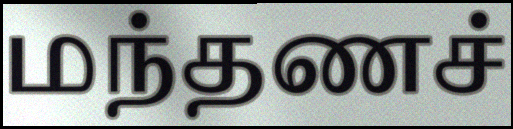
மந்தணச்